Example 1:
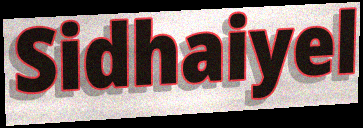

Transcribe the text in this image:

Sidhaiyel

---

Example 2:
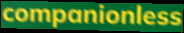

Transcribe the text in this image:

companionless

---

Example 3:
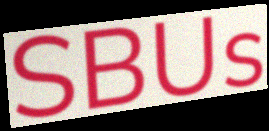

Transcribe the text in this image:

SBUs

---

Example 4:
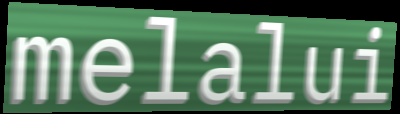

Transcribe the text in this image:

melalui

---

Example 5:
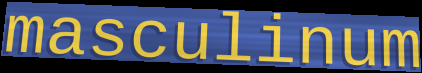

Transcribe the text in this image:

masculinum